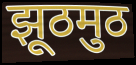
झूठमुठ